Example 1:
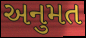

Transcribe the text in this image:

અનુમત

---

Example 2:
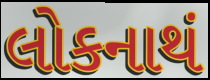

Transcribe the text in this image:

લોકનાથં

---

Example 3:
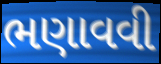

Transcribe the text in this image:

ભણાવવી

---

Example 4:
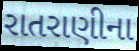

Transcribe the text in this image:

રાતરાણીના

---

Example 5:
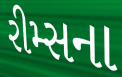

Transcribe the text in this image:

રીમ્સના